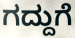
ಗದ್ದುಗೆ